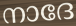
നാദേ